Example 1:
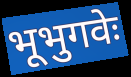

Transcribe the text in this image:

भूभुगवेः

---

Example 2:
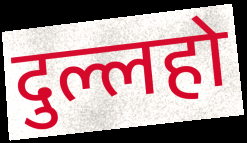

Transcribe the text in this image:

दुल्लहो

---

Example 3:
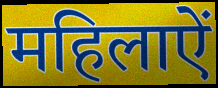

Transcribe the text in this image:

महिलाऐं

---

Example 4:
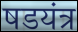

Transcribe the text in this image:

षडयंत्र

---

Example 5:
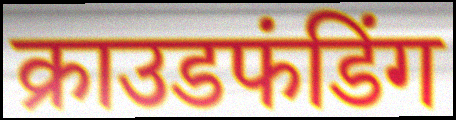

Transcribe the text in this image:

क्राउडफंडिंग